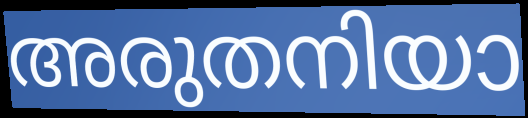
അരുതനിയാ